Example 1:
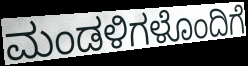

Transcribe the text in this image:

ಮಂಡಳಿಗಳೊಂದಿಗೆ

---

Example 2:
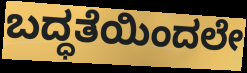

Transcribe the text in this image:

ಬದ್ಧತೆಯಿಂದಲೇ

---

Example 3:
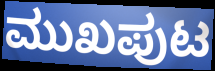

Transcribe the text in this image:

ಮುಖಪುಟ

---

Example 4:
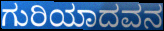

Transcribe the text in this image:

ಗುರಿಯಾದವನ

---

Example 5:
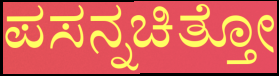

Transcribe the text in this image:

ಪಸನ್ನಚಿತ್ತೋ